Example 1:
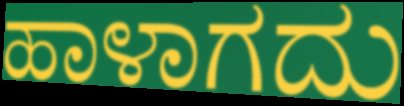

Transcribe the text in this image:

ಹಾಳಾಗದು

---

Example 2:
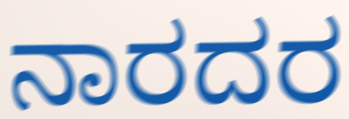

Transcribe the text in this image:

ನಾರದರ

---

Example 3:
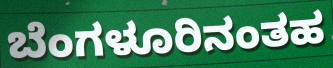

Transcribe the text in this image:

ಬೆಂಗಳೂರಿನಂತಹ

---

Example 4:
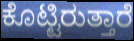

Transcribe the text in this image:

ಕೊಟ್ಟಿರುತ್ತಾರೆ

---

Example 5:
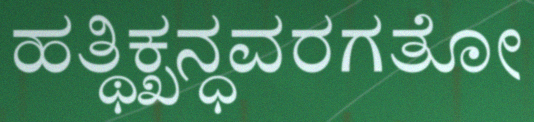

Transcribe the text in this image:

ಹತ್ಥಿಕ್ಖನ್ಧವರಗತೋ